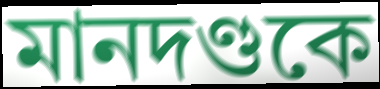
মানদণ্ডকে